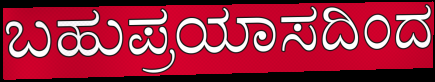
ಬಹುಪ್ರಯಾಸದಿಂದ